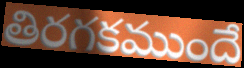
తిరగకముందే